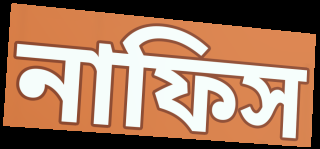
নাফিস